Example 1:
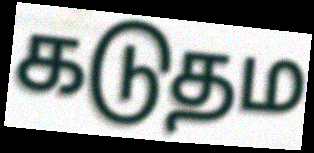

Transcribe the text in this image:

கடுதம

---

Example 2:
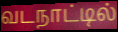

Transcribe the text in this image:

வடநாட்டில்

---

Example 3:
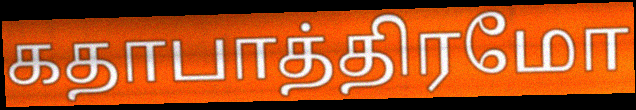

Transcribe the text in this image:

கதாபாத்திரமோ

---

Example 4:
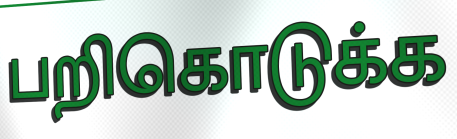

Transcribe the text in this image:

பறிகொடுக்க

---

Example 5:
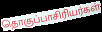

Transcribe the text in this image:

தொகுப்பாசிரியர்கள்